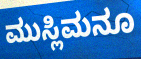
ಮುಸ್ಲಿಮನೂ